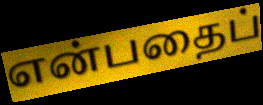
என்பதைப்